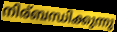
നിര്ബന്ധിക്കുന്നു